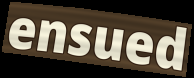
ensued